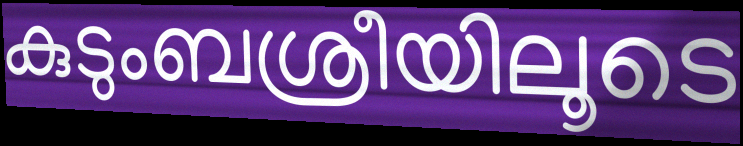
കുടുംബശ്രീയിലൂടെ